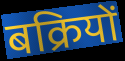
बक्रियों